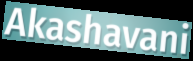
Akashavani